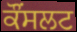
ਕੌਂਸਲਟ